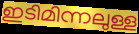
ഇടിമിന്നലുള്ള